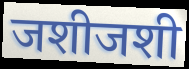
जशीजशी